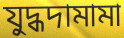
যুদ্ধদামামা